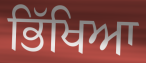
ਭਿੱਖਿਆ